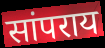
सांपराय